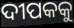
ଦୀପକକୁ